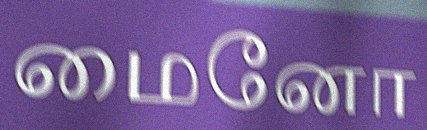
மைனோ